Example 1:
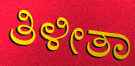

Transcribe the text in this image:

ತಿಳೀತಾ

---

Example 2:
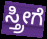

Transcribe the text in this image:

ಸ್ತ್ರೀಗೆ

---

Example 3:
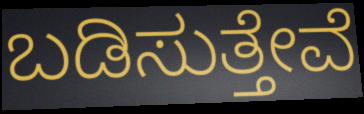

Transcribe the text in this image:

ಬಡಿಸುತ್ತೇವೆ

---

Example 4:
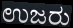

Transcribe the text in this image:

ಉಜರು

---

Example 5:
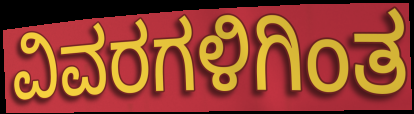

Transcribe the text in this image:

ವಿವರಗಳಿಗಿಂತ